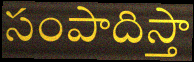
సంపాదిస్తా